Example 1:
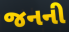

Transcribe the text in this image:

જનની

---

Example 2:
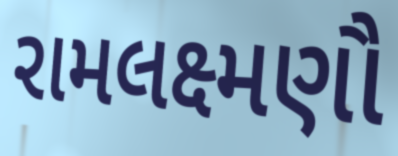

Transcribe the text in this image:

રામલક્ષ્મણૌ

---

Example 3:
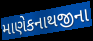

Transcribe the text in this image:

માણેકનાથજીના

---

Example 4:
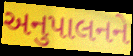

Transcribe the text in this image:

અનુપાલનને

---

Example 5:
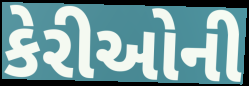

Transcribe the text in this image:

કેરીઓની